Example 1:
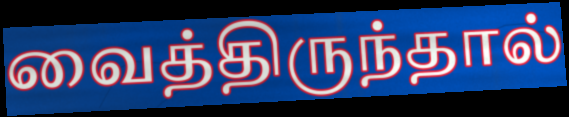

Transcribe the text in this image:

வைத்திருந்தால்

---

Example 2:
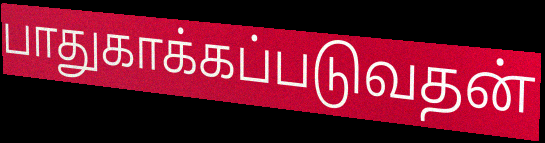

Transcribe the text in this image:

பாதுகாக்கப்படுவதன்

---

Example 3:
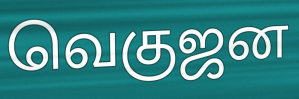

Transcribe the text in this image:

வெகுஜன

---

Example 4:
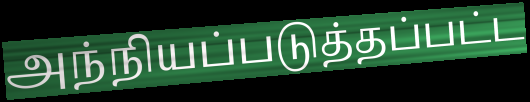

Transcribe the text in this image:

அந்நியப்படுத்தப்பட்ட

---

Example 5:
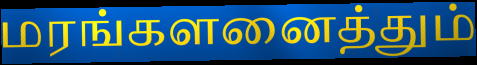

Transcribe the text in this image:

மரங்களனைத்தும்